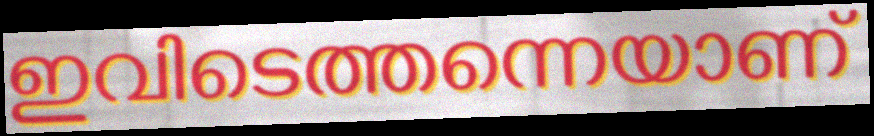
ഇവിടെത്തന്നെയാണ്